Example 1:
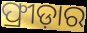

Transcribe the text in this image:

ଫ୍ରୀଡ଼ାର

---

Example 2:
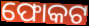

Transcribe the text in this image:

ଫୋକଟ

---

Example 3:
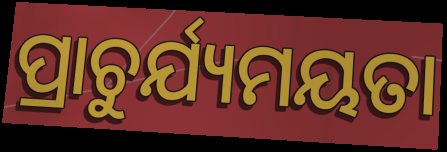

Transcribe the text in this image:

ପ୍ରାଚୁର୍ଯ୍ୟମୟତା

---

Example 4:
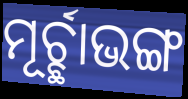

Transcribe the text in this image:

ମୂର୍ଚ୍ଛାଭଙ୍ଗ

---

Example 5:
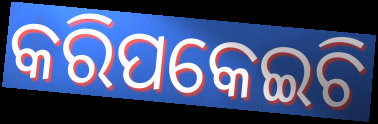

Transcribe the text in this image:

କରିପକେଇଚି